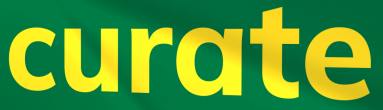
curate